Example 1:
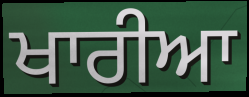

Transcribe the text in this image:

ਖਾਰੀਆ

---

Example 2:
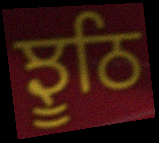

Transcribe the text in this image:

ਝੂਠਿ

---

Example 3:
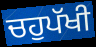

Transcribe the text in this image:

ਚਹੁਪੱਖੀ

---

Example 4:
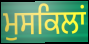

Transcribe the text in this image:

ਮੁਸਕਿਲਾਂ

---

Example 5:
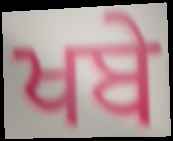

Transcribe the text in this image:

ਖਬੇ